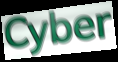
Cyber